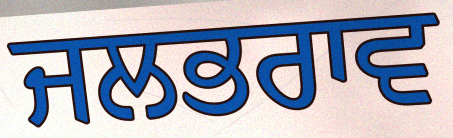
ਜਲਭਰਾਵ